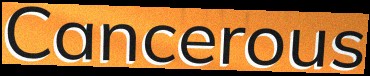
Cancerous